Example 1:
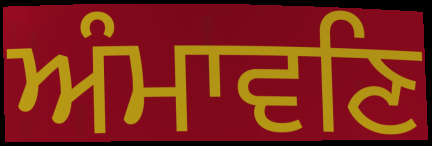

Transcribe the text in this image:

ਅੰਮਾਵਣਿ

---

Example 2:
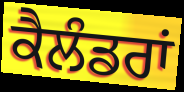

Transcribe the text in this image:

ਕੈਲੰਡਰਾਂ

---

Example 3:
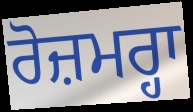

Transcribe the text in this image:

ਰੋਜ਼ਮਰ੍ਹਾ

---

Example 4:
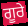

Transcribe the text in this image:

ਗੂਰੇ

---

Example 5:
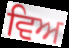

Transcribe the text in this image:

ਵਿਅ